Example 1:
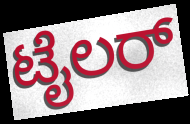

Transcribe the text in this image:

ಟೈಲರ್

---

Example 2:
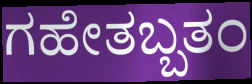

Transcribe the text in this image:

ಗಹೇತಬ್ಬತಂ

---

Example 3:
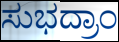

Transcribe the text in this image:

ಸುಭದ್ರಾಂ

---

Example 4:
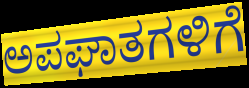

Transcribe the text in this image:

ಅಪಘಾತಗಳಿಗೆ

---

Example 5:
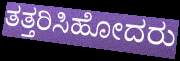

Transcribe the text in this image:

ತತ್ತರಿಸಿಹೋದರು